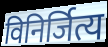
विनिर्जित्य